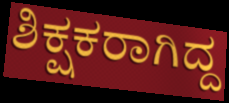
ಶಿಕ್ಷಕರಾಗಿದ್ದ